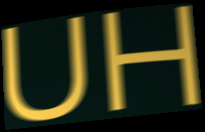
UH